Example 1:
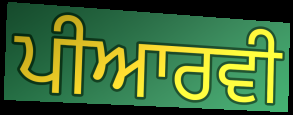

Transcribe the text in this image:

ਪੀਆਰਵੀ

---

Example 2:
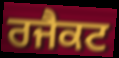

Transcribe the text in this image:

ਰਜੈਕਟ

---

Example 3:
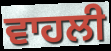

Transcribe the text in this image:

ਵਾਹਲੀ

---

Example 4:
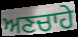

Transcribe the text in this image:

ਅਣਚਾਹੇ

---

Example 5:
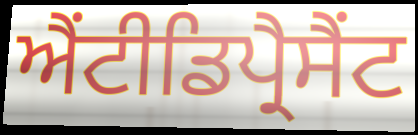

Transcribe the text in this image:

ਐਂਟੀਡਿਪ੍ਰੈਸੈਂਟ